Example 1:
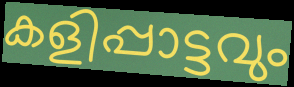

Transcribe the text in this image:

കളിപ്പാട്ടവും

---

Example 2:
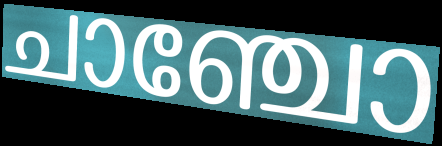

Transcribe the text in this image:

ചാഞ്ചോ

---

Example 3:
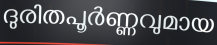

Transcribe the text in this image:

ദുരിതപൂർണ്ണവുമായ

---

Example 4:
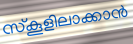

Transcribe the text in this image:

സ്കൂളിലാക്കാൻ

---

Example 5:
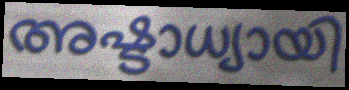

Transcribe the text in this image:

അഷ്ടാധ്യായി